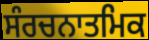
ਸੰਰਚਨਾਤਮਿਕ